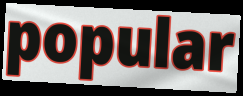
popular